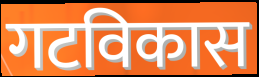
गटविकास